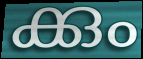
ക്കും